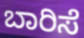
ಬಾರಿಸೆ